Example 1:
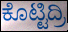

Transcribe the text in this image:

ಕೊಟ್ಟಿದ್ರಿ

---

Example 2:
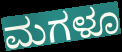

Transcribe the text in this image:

ಮಗಳೂ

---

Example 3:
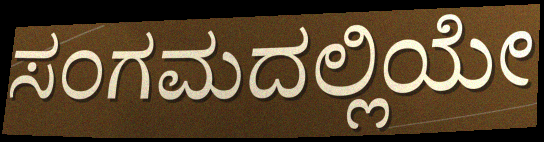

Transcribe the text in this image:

ಸಂಗಮದಲ್ಲಿಯೇ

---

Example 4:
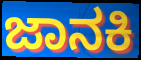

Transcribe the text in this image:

ಜಾನಕಿ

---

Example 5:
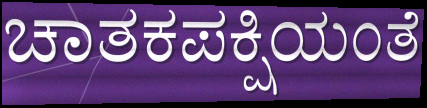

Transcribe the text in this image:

ಚಾತಕಪಕ್ಷಿಯಂತೆ